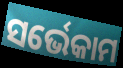
ସର୍ଭେକାମ